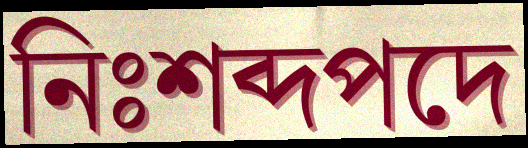
নিঃশব্দপদে